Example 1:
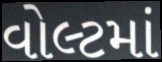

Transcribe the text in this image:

વોલ્ટમાં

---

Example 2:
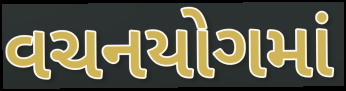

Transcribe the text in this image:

વચનયોગમાં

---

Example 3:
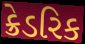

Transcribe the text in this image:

ક્રેડરિક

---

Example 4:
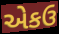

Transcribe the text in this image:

એકઉ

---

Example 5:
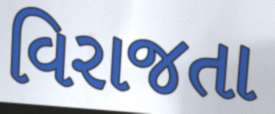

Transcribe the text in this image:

વિરાજતા